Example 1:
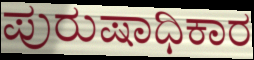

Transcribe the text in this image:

ಪುರುಷಾಧಿಕಾರ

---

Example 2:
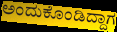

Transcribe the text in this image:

ಅಂದುಕೊಂಡಿದ್ದಾಗ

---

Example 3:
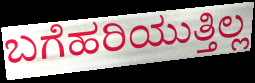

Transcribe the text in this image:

ಬಗೆಹರಿಯುತ್ತಿಲ್ಲ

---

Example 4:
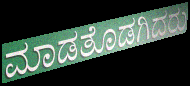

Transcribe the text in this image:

ಮಾಡತೊಡಗಿದರು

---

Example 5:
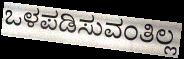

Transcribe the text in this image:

ಒಳಪಡಿಸುವಂತಿಲ್ಲ